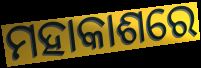
ମହାକାଶରେ